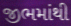
જીભમાંથી